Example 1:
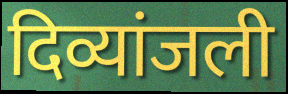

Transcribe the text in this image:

दिव्यांजली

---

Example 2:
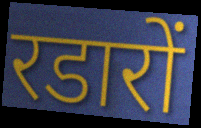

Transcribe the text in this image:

रडारों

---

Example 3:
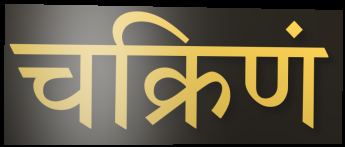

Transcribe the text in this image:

चक्रिणं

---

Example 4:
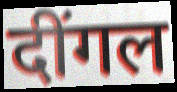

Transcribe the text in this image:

दींगल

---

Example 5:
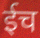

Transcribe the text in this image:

ईच